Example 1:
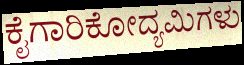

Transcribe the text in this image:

ಕೈಗಾರಿಕೋದ್ಯಮಿಗಳು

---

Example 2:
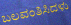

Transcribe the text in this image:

ಬಲವಂತಿಸಿದಳು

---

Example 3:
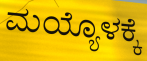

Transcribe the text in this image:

ಮಯ್ಯೊಳಕ್ಕೆ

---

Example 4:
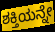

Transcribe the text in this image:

ಶಕ್ತಿಯನ್ನೇ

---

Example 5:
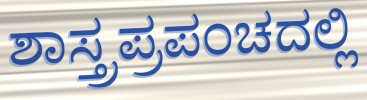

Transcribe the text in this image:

ಶಾಸ್ತ್ರಪ್ರಪಂಚದಲ್ಲಿ